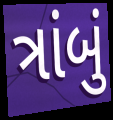
ત્રાંબું